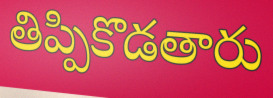
తిప్పికొడతారు